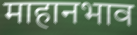
माहानभाव